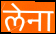
लेना